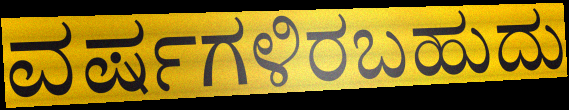
ವರ್ಷಗಳಿರಬಹುದು